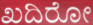
ಖದಿರೋ